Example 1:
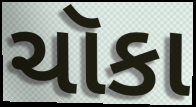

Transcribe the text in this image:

ચૉકા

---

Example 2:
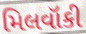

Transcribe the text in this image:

મિલવૉકી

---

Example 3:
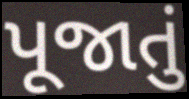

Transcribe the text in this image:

પૂજાતું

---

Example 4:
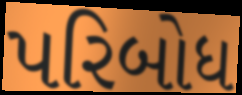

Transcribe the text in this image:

પરિબોધ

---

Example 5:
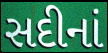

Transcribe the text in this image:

સદીનાં